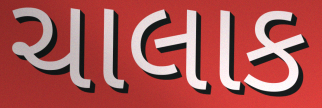
ચાલાક